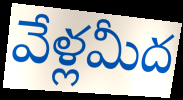
వేళ్లమీద